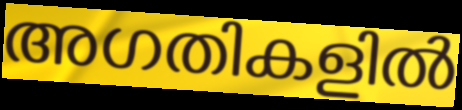
അഗതികളിൽ